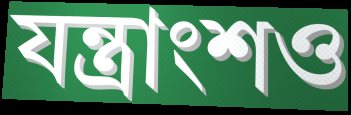
যন্ত্রাংশও